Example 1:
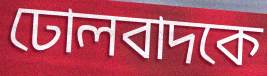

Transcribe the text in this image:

ঢোলবাদকে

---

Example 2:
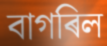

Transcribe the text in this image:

বাগৰিল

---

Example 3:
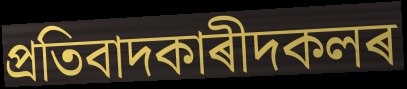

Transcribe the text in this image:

প্ৰতিবাদকাৰীদকলৰ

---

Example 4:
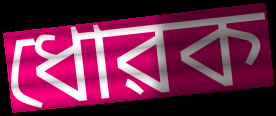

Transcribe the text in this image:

ধোৱক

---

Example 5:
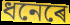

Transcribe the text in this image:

ধনেৰে